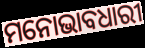
ମନୋଭାବଧାରୀ